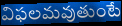
విఫలమవుతుంటే